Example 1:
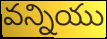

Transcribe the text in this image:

వన్నియు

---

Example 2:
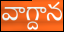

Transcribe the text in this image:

వాగ్దాన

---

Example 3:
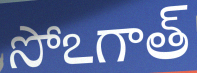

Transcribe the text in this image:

సోఽగాత్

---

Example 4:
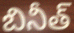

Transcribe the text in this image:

బినీత్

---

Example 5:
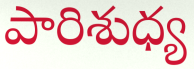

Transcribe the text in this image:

పారిశుధ్య